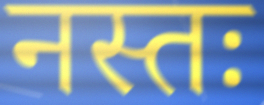
नस्तः